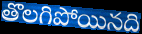
తొలగిపోయినది